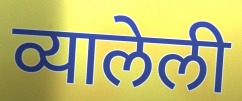
व्यालेली